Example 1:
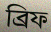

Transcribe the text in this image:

ব্রিফ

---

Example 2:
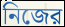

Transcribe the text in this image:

নিজের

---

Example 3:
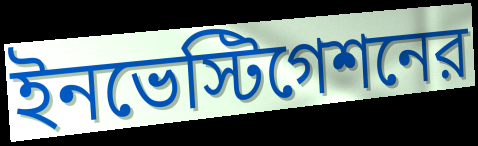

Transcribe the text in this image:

ইনভেস্টিগেশনের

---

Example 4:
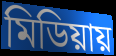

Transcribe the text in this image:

মিডিয়ায়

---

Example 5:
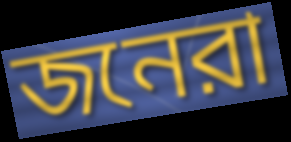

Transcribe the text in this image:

জনেরা